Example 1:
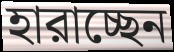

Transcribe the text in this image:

হারাচ্ছেন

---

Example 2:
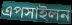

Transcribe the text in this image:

এপসাইলন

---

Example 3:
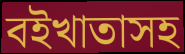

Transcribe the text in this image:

বইখাতাসহ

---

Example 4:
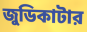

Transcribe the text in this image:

জুডিকাটার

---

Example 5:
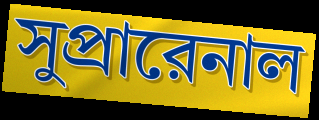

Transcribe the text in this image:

সুপ্রারেনাল